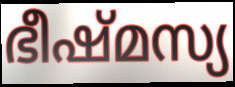
ഭീഷ്മസ്യ